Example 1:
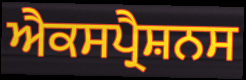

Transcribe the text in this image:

ਐਕਸਪ੍ਰੈਸ਼ਨਸ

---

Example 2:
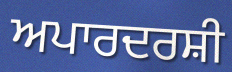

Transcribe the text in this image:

ਅਪਾਰਦਰਸ਼ੀ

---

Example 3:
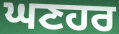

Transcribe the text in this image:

ਘਣਹਰ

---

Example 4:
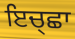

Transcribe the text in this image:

ਇਚ੍ਛਾ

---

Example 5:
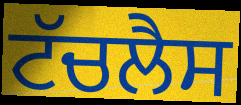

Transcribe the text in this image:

ਟੱਚਲੈਸ